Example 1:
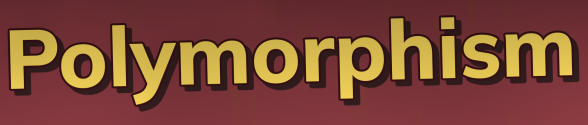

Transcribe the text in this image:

Polymorphism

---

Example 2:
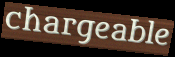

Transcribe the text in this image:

chargeable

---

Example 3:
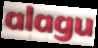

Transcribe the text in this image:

alagu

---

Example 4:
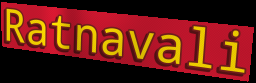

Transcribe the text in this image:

Ratnavali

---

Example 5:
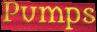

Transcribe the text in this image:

Pumps